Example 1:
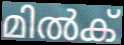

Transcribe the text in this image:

മിൽക്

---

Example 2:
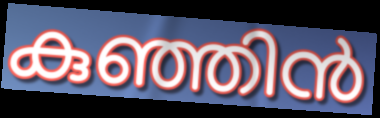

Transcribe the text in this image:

കുഞ്ഞിൻ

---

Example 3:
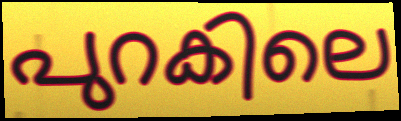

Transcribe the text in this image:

പുറകിലെ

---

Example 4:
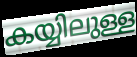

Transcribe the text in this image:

കയ്യിലുള്ള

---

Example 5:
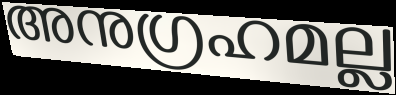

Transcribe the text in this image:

അനുഗ്രഹമല്ല